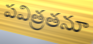
పవిత్రతనూ